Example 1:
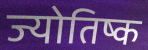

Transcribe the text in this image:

ज्योतिष्क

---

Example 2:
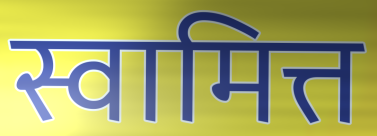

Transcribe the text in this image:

स्वामित्त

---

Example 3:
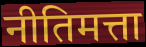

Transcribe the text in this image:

नीतिमत्ता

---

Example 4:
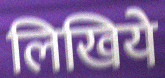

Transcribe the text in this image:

लिखिये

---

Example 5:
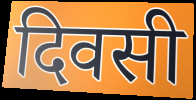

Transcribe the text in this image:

दिवसी